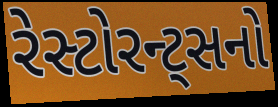
રેસ્ટોરન્ટ્સનો